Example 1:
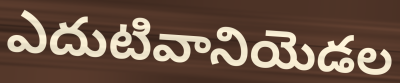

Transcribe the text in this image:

ఎదుటివానియెడల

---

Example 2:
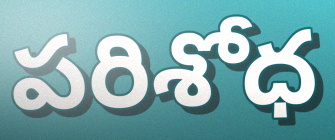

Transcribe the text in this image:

పరిశోధ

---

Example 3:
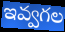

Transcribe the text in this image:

ఇవ్వగల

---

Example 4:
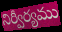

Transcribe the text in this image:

నిర్వీర్యము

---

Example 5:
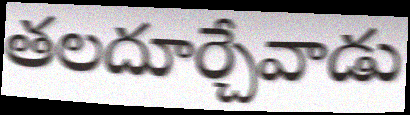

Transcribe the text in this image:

తలదూర్చేవాడు